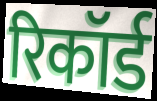
रिकॉर्ड